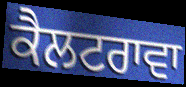
ਕੈਲਟਰਾਵਾ